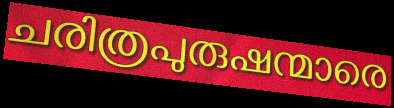
ചരിത്രപുരുഷന്മാരെ